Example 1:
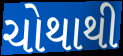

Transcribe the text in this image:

ચોથાથી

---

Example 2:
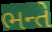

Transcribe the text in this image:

ભન્તે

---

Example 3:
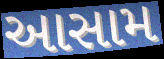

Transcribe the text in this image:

આસામ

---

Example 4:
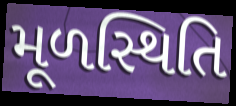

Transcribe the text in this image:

મૂળસ્થિતિ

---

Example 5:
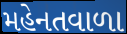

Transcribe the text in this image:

મહેનતવાળા